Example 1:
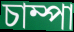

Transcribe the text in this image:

চাম্পা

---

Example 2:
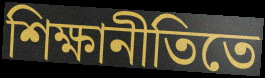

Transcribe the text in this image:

শিক্ষানীতিতে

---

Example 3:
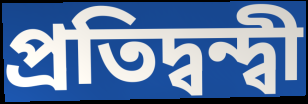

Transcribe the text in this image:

প্রতিদ্বন্দ্বী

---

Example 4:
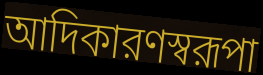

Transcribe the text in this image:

আদিকারণস্বরূপা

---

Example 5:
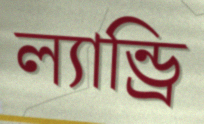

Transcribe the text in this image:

ল্যান্ড্রি